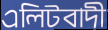
এলিটবাদী